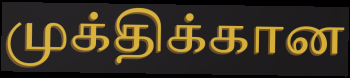
முக்திக்கான